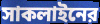
সাকলাইনের